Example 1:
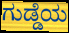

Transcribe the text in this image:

ಗುಡ್ಡೆಯ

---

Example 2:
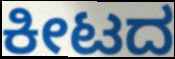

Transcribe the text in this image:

ಕೀಟದ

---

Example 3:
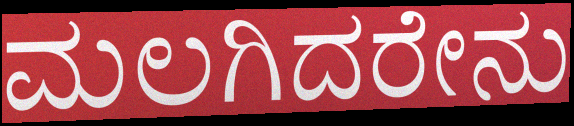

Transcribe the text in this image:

ಮಲಗಿದರೇನು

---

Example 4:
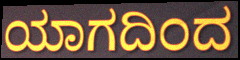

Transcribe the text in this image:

ಯಾಗದಿಂದ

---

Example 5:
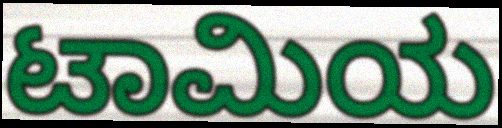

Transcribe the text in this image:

ಟಾಮಿಯ